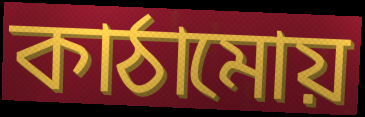
কাঠামোয়